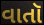
વાતૉ